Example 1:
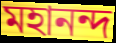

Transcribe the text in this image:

মহানন্দ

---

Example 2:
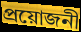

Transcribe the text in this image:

প্রয়োজনী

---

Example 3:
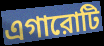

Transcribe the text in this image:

এগারোটি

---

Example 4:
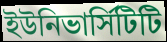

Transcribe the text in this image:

ইউনিভার্সিটিটি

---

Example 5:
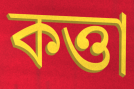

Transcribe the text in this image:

কত্তা